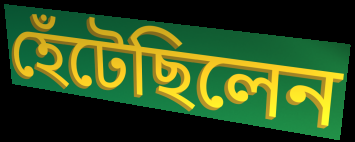
হেঁটেছিলেন